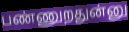
பண்ணுறதுன்னு